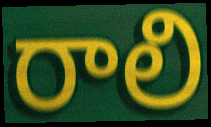
రాలి